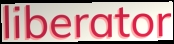
liberator